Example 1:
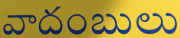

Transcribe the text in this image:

వాదంబులు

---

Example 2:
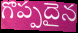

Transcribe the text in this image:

గొప్పదైన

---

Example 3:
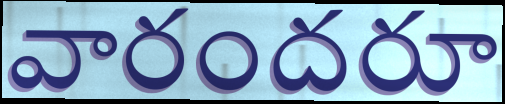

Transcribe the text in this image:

వారందరూ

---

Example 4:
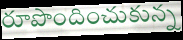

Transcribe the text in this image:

రూపొందించుకున్న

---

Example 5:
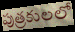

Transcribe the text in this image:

పుత్రకులలో